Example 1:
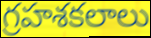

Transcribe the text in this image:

గ్రహశకలాలు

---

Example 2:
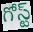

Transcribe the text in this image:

గోస్ట్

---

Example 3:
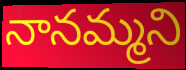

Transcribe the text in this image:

నానమ్మని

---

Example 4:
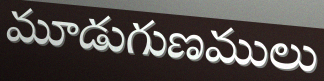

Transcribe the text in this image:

మూడుగుణములు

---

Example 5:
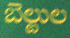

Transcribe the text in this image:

బెల్టుల